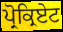
ਪ੍ਰੋਕ੍ਰਿਏਟ